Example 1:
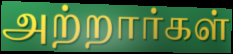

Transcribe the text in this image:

அற்றார்கள்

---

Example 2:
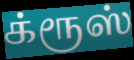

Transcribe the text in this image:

க்ரூஸ்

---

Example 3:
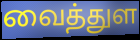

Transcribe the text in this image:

வைத்துள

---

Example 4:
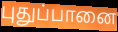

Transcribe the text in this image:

புதுப்பானை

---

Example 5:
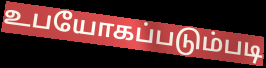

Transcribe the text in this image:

உபயோகப்படும்படி